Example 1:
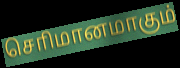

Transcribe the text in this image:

செரிமானமாகும்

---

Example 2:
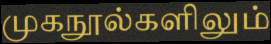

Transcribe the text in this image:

முகநூல்களிலும்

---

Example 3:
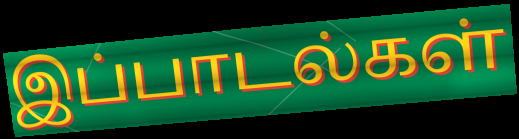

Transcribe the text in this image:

இப்பாடல்கள்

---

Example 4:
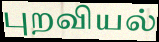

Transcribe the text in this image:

புறவியல்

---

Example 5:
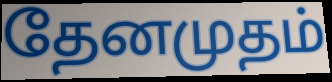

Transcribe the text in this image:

தேனமுதம்